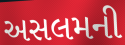
અસલમની